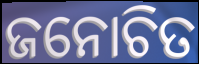
ଜନୋଚିତ